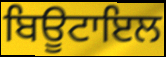
ਬਿਊਟਾਇਲ